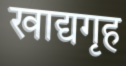
खाद्यगृह